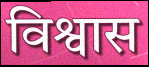
विश्वास